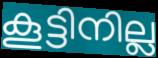
കൂട്ടിനില്ല